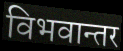
विभवान्तर